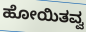
ಹೋಯಿತವ್ವ